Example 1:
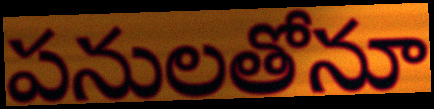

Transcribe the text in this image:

పనులతోనూ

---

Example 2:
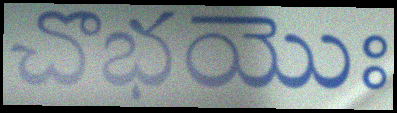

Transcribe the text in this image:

చొభయొః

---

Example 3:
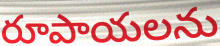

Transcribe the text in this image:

రూపాయలను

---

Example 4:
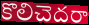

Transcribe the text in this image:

కొలిచెదరా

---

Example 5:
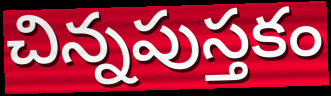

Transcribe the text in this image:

చిన్నపుస్తకం